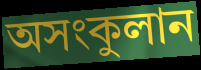
অসংকুলান